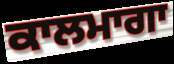
ਕਾਲਮਾਗਾ